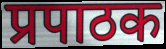
प्रपाठक